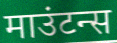
माउंटन्स